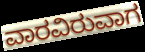
ವಾರವಿರುವಾಗ